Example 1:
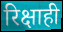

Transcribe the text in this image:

रिक्षाही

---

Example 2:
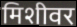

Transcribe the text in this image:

मिशीवर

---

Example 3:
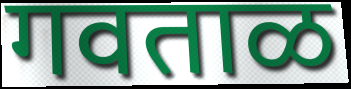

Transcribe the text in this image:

गवताळ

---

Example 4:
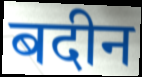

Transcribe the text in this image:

बदीन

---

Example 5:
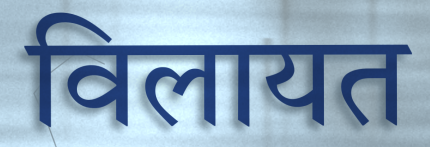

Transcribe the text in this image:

विलायत